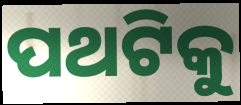
ପଥଟିକୁ